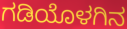
ಗಡಿಯೊಳಗಿನ